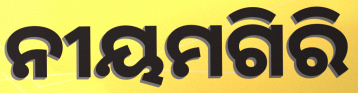
ନୀୟମଗିରି